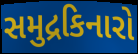
સમુદ્રકિનારો